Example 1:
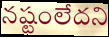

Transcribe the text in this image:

నష్టంలేదని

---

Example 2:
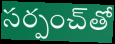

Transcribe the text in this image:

సర్పంచ్‌తో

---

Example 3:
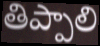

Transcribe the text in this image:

తిప్పాలి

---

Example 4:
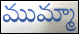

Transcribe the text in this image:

ముమ్మా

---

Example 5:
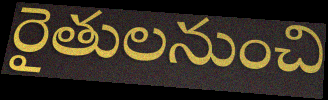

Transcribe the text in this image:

రైతులనుంచి